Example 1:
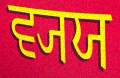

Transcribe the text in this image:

ਵ੍ਯਯ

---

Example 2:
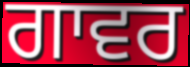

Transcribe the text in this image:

ਗਾਵਰ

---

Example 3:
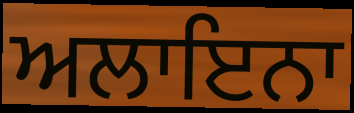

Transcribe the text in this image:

ਅਲਾਇਨਾ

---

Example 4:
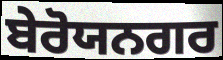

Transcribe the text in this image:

ਬੇਰੋਯਨਗਰ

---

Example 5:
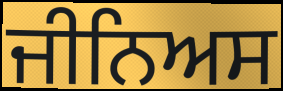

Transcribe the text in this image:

ਜੀਨਿਅਸ